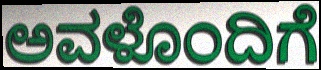
ಅವಳೊಂದಿಗೆ